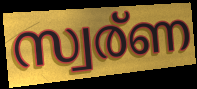
സ്വര്ണ